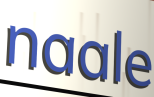
naale